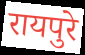
रायपुरे